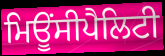
ਮਿਊਂਸੀਪੈਲਿਟੀ